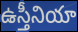
ఉస్తీనియా